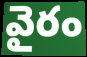
వైరం